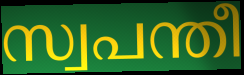
സ്വപന്തീ